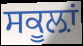
ਸਕੂਲ਼ਾਂ